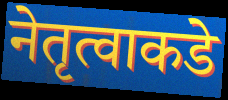
नेतृत्वाकडे